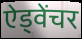
ऐड्वेंचर